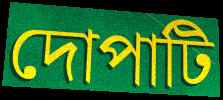
দোপাটি